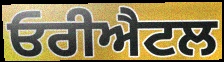
ਓਰੀਐਟਲ